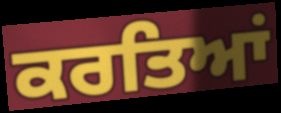
ਕਰਤਿਆਂ